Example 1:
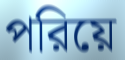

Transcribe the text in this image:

পরিয়ে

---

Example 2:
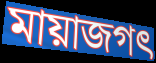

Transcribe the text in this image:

মায়াজগৎ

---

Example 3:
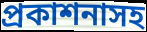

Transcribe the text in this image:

প্রকাশনাসহ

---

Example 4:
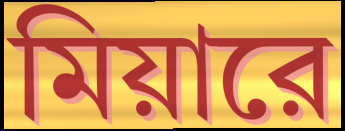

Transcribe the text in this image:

মিয়ারে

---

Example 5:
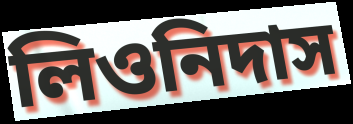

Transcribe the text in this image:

লিওনিদাস